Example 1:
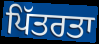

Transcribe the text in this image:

ਪਿੱਤਰਤਾ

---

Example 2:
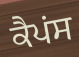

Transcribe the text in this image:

ਕੈਪਂਸ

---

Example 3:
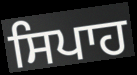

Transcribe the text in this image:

ਸਿਪਾਹ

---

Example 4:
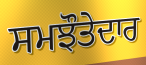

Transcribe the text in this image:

ਸਮਝੌਤੇਦਾਰ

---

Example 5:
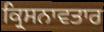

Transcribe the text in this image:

ਕ੍ਰਿਸਨਾਵਤਾਰ